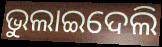
ଭୁଲାଇଦେଲି